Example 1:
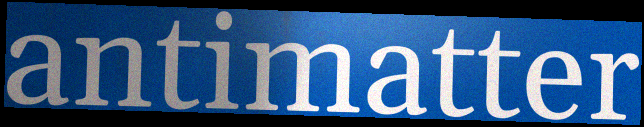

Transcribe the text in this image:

antimatter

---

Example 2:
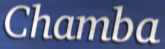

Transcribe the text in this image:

Chamba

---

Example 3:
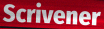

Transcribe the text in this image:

Scrivener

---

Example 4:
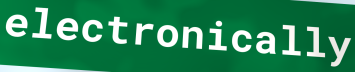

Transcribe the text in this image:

electronically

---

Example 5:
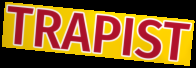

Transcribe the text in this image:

TRAPIST